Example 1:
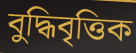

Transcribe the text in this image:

বুদ্ধিবৃত্তিক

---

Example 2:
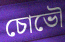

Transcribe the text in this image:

চোভৌ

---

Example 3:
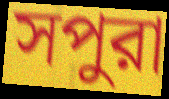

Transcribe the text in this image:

সপুরা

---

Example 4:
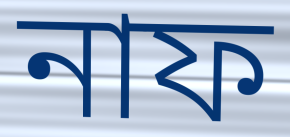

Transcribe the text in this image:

নাফ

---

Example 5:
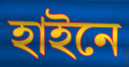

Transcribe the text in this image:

হাইনে